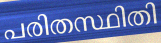
പരിതസ്ഥിതി